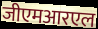
जीएमआरएल